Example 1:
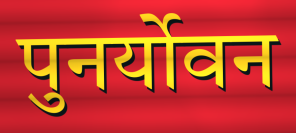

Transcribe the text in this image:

पुनर्योवन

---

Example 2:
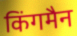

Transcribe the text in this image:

किंगमैन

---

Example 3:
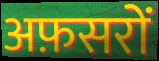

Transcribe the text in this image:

अफ़सरों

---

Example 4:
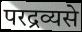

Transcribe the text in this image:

परद्रव्यसे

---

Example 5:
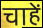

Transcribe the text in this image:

चाहें